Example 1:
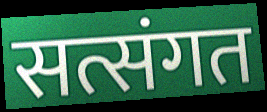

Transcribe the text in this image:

सत्संगत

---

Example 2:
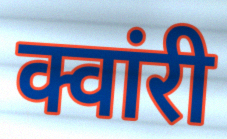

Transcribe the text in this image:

क्वांरी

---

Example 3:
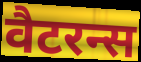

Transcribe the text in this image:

वैटरन्स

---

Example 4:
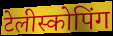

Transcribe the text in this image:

टेलीस्कोपिंग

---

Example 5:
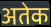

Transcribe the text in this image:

अतेक